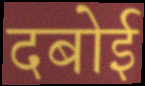
दबोई